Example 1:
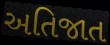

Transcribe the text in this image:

અતિજાત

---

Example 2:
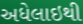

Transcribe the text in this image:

અધેલાઇથી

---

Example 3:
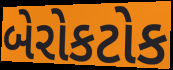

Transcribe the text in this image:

બેરોકટોક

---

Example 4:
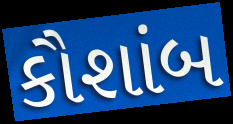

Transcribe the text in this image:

કૌશાંબ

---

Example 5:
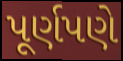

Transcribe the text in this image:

પૂર્ણપણે